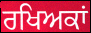
ਰਖਿਅਕਾਂ